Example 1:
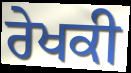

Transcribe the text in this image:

ਰੇਖਕੀ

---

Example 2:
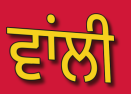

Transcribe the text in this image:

ਵਾਂਲੀ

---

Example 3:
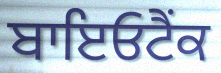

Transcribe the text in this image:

ਬਾਇਓਟੈਂਕ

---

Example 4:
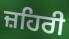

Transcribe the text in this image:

ਜ਼ਹਿਰੀ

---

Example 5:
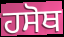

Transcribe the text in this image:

ਹਸੋਥ